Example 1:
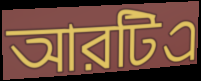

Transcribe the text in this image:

আরটিএ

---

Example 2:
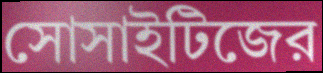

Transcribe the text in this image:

সোসাইটিজের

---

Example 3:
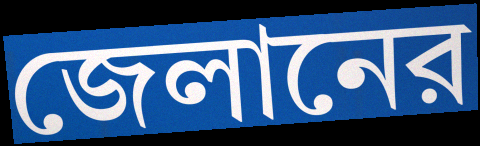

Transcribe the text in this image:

জেলানের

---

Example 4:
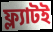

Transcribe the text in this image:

ফ্ল্যাটই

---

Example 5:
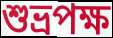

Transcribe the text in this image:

শুভ্রপক্ষ